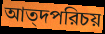
আত্দপরিচয়